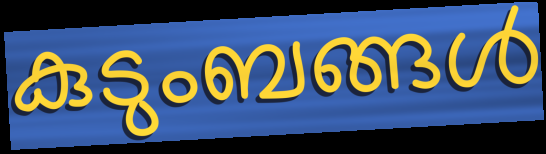
കുടുംബങ്ങൾ